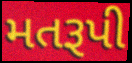
મતરૂપી